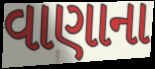
વાણાના